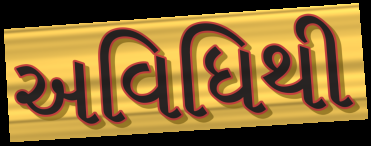
અવિધિથી